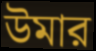
উমার